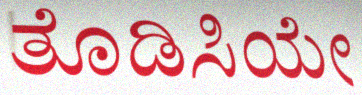
ತೊಡಿಸಿಯೇ